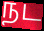
நட